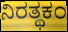
ನಿರತ್ಥಕಂ